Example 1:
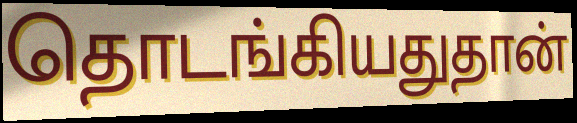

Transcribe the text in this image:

தொடங்கியதுதான்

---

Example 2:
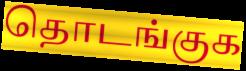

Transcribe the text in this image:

தொடங்குக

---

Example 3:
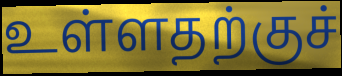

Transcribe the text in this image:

உள்ளதற்குச்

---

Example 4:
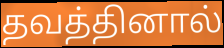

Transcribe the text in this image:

தவத்தினால்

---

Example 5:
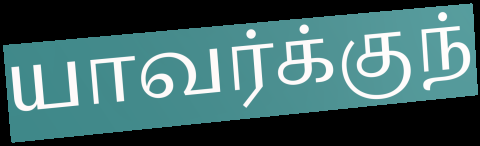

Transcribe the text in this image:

யாவர்க்குந்